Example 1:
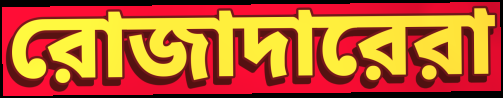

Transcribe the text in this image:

রোজাদারেরা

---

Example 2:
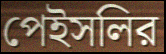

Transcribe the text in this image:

পেইসলির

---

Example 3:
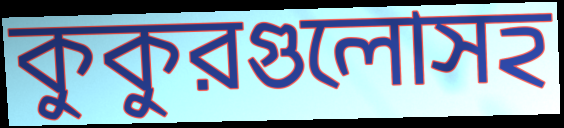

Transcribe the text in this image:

কুকুরগুলোসহ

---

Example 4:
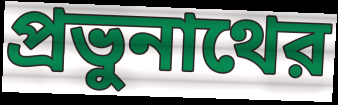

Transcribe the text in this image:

প্রভুনাথের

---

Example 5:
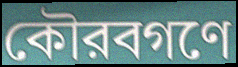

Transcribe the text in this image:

কৌরবগণে